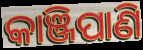
କାଞ୍ଜିପାଣି